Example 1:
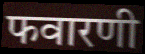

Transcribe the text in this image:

फवारणी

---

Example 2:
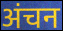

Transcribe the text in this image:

अंचन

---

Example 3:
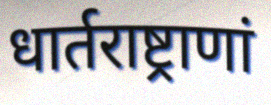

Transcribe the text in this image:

धार्तराष्ट्राणां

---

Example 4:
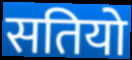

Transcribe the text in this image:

सतियो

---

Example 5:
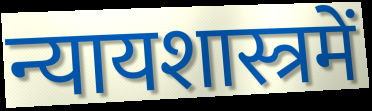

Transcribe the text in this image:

न्यायशास्त्रमें